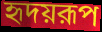
হৃদয়রূপ